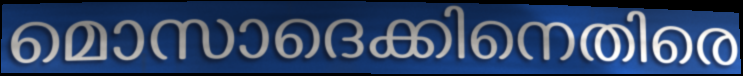
മൊസാദെക്കിനെതിരെ